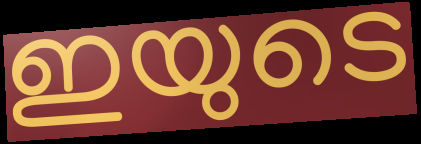
ഇയുടെ